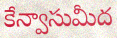
కేన్వాసుమీద